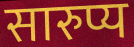
सारुप्य